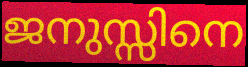
ജനുസ്സിനെ